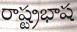
రాష్ట్రభాష